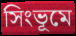
সিংভূমে